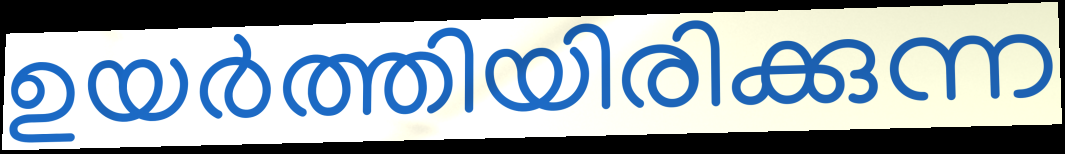
ഉയർത്തിയിരിക്കുന്ന